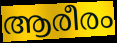
ആരീരം